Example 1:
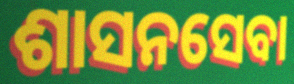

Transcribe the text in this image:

ଶାସନସେବା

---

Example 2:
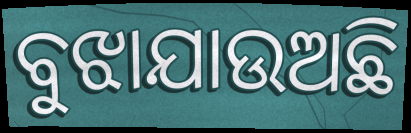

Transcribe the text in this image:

ବୁଝାଯାଉଅଛି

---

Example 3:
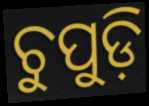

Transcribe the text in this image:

ଚୁପୁଡ଼ି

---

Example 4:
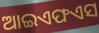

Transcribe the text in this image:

ଆଇଏଫଏସ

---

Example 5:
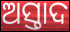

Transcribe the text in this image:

ଅସ୍ତାଦ